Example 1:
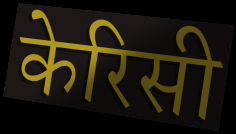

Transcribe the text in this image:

केरिसी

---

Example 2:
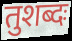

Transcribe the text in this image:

तुशब्दः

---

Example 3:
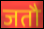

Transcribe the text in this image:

जतौ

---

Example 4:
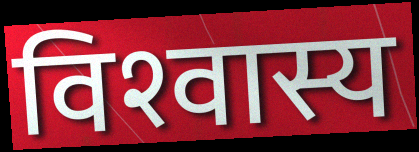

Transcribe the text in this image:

विश्वास्य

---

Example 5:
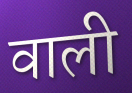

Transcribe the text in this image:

वाली